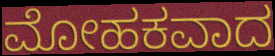
ಮೋಹಕವಾದ